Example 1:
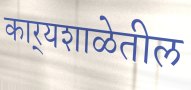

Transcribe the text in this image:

कार्यशाळेतील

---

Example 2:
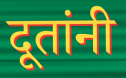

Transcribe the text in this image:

दूतांनी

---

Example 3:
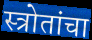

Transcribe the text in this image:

स्त्रोतांचा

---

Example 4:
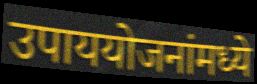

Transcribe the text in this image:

उपाययोजनांमध्ये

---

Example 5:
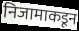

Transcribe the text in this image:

निजामाकडून